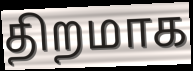
திறமாக